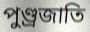
পুণ্ড্রজাতি